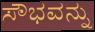
ಸೌಭವನ್ನು